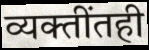
व्यक्तींतही